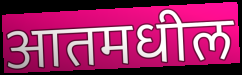
आतमधील